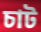
চাট